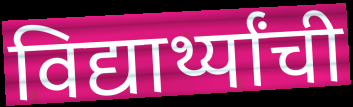
विद्यार्थ्‍यांची